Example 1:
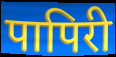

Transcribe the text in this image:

पापिरी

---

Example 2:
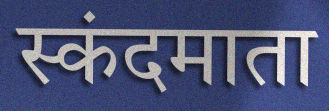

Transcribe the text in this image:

स्‍कंदमाता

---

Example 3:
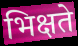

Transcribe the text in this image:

भिक्षते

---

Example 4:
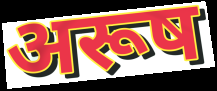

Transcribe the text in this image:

अरूष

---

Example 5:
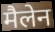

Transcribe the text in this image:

मैलेन